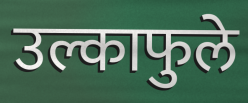
उल्काफुले